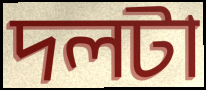
দলটা